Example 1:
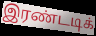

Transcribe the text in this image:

இரண்டடிக்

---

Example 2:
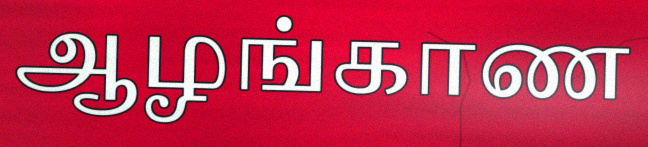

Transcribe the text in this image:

ஆழங்காண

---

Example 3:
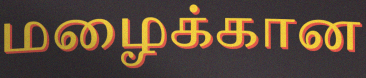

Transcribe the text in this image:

மழைக்கான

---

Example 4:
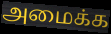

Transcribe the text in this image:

அமைக்க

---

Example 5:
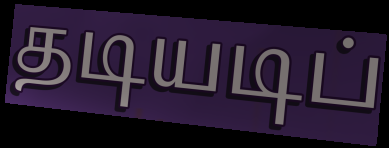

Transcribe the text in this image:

தடியடிப்